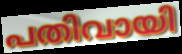
പതിവായി